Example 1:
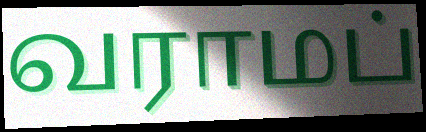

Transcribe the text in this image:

வராமப்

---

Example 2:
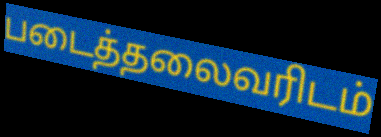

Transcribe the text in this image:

படைத்தலைவரிடம்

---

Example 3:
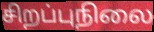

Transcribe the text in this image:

சிறப்புநிலை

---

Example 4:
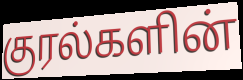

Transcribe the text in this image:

குரல்களின்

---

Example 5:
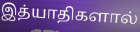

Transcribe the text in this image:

இத்யாதிகளால்